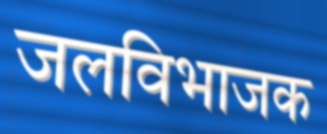
जलविभाजक